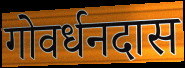
गोवर्धनदास